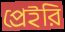
প্রেইরি